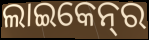
ଲାଇକେନ୍‌ର